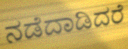
ನಡೆದಾಡಿದರೆ